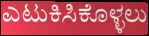
ಎಟುಕಿಸಿಕೊಳ್ಳಲು